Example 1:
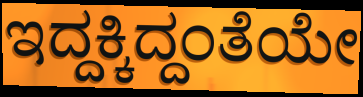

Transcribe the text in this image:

ಇದ್ದಕ್ಕಿದ್ದಂತೆಯೇ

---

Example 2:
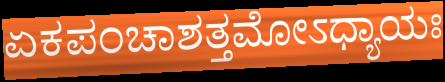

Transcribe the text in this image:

ಏಕಪಂಚಾಶತ್ತಮೋಽಧ್ಯಾಯಃ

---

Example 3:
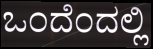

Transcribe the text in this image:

ಒಂದೆಂದಲ್ಲಿ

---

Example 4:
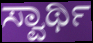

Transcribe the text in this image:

ಸ್ವಾರ್ಥಿ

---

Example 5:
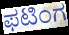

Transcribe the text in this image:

ಫಟಿಂಗ